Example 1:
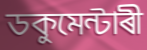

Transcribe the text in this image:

ডকুমেন্টাৰী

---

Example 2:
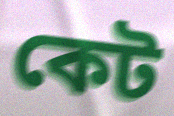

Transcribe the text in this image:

কেট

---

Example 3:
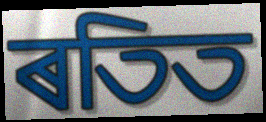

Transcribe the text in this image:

ৰতিত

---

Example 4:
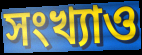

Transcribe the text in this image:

সংখ্যাও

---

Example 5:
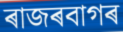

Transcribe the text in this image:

ৰাজৰবাগৰ